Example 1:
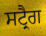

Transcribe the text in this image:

ਸਟ੍ਰੈਗ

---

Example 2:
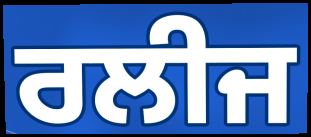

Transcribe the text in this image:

ਰਲੀਜ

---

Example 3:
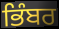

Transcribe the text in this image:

ਭਿੰਬਰ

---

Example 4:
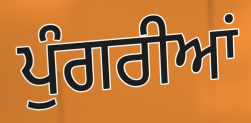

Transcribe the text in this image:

ਪੁੰਗਰੀਆਂ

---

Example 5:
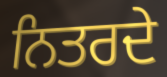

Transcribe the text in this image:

ਨਿਤਰਦੇ